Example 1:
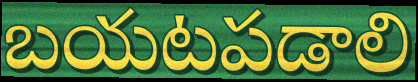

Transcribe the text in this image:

బయటపడాలి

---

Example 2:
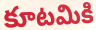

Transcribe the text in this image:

కూటమికి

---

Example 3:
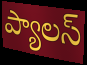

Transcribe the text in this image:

ప్యాలస్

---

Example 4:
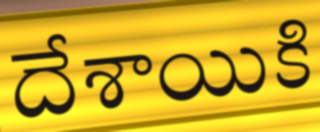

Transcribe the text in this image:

దేశాయికి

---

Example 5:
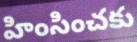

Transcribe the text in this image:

హింసించకు